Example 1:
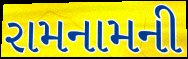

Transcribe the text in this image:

રામનામની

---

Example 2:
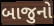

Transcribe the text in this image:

બાજુનો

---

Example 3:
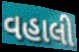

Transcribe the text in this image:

વહાલી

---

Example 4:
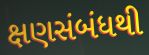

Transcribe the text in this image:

ક્ષણસંબંધથી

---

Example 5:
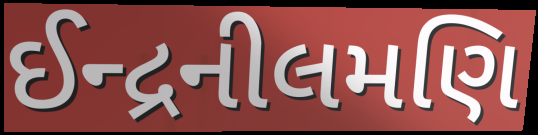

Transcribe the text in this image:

ઈન્દ્રનીલમણિ